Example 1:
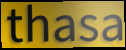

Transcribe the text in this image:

thasa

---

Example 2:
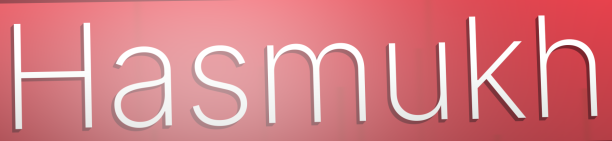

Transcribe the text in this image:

Hasmukh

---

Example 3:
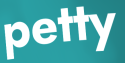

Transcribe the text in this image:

petty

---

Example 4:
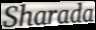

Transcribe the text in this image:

Sharada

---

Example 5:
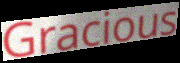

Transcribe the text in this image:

Gracious